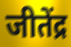
जीतेंद्र